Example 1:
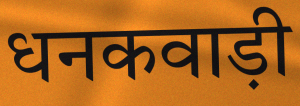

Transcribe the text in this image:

धनकवाड़ी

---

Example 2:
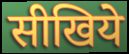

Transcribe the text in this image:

सीखिये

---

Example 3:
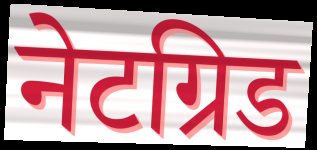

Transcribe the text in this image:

नेटग्रिड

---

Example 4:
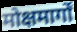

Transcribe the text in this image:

मोक्षमार्गों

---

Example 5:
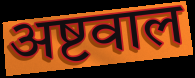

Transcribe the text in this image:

अष्टवाल